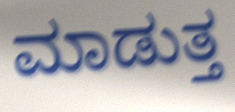
ಮಾಡುತ್ತ